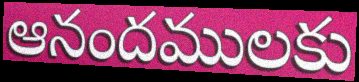
ఆనందములకు